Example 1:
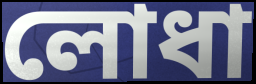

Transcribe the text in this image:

লোধা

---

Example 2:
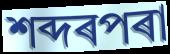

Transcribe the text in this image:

শব্দৰপৰা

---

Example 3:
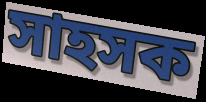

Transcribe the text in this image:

সাহসক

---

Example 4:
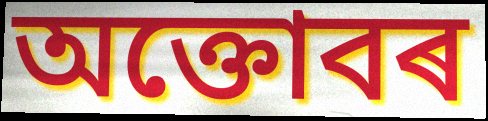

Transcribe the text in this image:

অক্তোবৰ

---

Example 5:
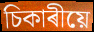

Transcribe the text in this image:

চিকাৰীয়ে